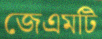
জেএমটি